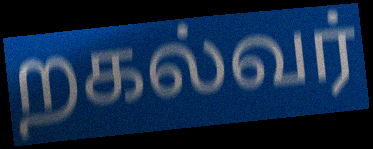
றகல்வர்